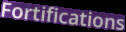
Fortifications